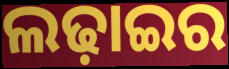
ଲଢ଼ାଇର